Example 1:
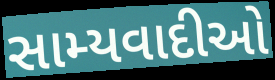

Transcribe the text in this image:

સામ્યવાદીઓ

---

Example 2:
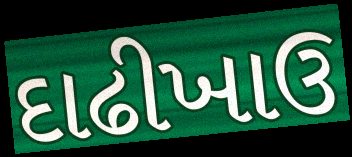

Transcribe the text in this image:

દાઢીખાઉ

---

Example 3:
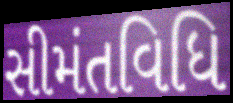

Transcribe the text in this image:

સીમંતવિધિ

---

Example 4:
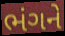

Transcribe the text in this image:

ભંગને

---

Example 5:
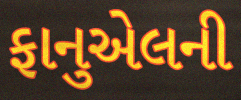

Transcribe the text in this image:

ફાનુએલની